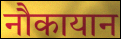
नौकायान